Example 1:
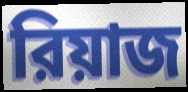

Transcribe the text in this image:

রিয়াজ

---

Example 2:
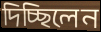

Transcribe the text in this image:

দিচ্ছিলেন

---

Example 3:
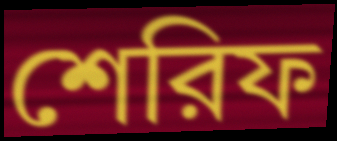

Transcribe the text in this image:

শেরিফ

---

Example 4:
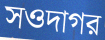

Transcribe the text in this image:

সওদাগর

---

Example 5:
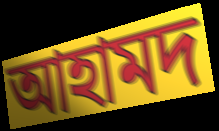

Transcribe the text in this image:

আহামদ